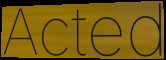
Acted